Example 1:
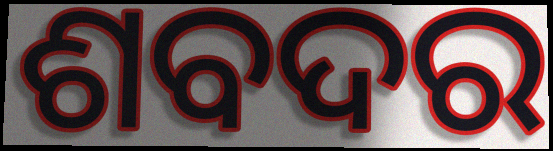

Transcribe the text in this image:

ଶବଦର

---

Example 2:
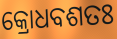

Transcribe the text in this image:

କ୍ରୋଧବଶତଃ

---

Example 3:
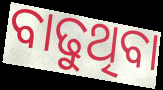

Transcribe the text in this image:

ବାଢୁଥିବା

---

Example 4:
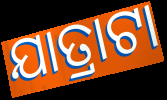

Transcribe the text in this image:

ଯାତ୍ରାଟା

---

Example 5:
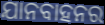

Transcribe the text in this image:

ଯାନବାହନର